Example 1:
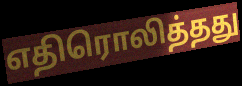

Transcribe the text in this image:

எதிரொலித்தது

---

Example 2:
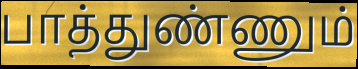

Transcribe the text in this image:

பாத்துண்ணும்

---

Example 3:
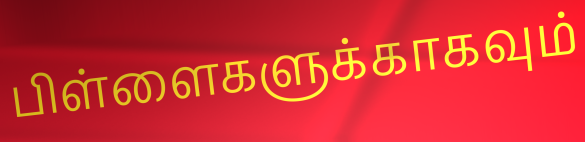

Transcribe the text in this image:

பிள்ளைகளுக்காகவும்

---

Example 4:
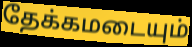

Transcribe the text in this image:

தேக்கமடையும்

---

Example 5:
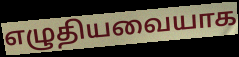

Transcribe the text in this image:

எழுதியவையாக